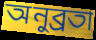
অনুব্রতা